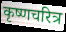
कृष्णचरित्र